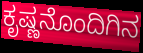
ಕೃಷ್ಣನೊಂದಿಗಿನ